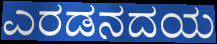
ಎರಡನದಯ